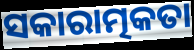
ସକାରାତ୍ମକତା